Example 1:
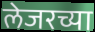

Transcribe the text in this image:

लेजरच्या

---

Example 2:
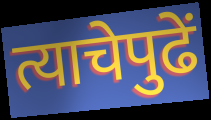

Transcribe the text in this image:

त्याचेपुढें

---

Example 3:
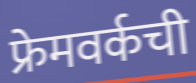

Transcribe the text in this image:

फ्रेमवर्कची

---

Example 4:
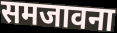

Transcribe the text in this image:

समजावना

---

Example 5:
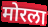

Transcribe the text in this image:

मोरला